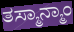
ತಸ್ಮಾನ್ಮಾಂ